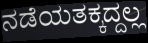
ನಡೆಯತಕ್ಕದ್ದಲ್ಲ